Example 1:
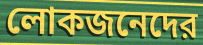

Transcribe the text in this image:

লোকজনেদের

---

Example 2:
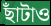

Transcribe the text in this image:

ছাঁটাও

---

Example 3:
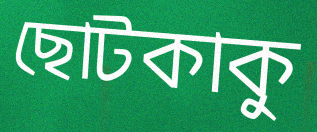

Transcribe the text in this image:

ছোটকাকু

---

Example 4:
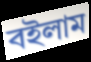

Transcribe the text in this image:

বইলাম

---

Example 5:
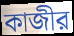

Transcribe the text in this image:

কাজীর